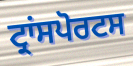
ਟ੍ਰਾਂਸਪੋਰਟਸ